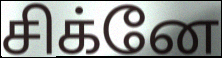
சிக்னே